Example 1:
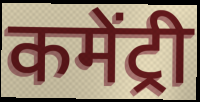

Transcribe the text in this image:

कमेंट्री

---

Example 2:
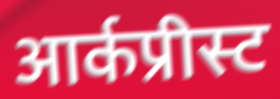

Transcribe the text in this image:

आर्कप्रीस्ट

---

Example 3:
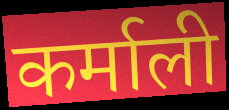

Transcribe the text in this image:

कर्माली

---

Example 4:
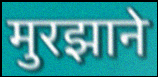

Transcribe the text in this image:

मुरझाने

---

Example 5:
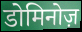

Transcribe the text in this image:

डोमिनोज़